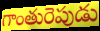
గాంతురెపుడు